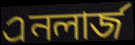
এনলার্জ